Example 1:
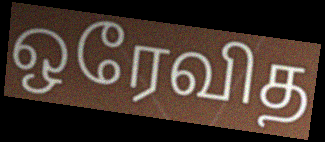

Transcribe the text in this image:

ஒரேவித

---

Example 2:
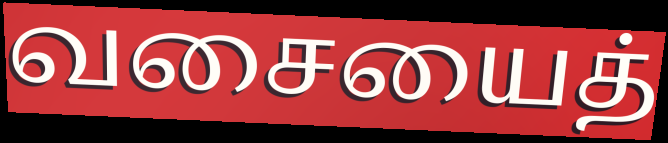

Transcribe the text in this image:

வசையைத்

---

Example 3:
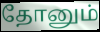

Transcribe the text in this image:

தோனும்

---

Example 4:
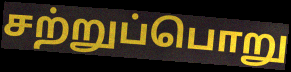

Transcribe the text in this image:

சற்றுப்பொறு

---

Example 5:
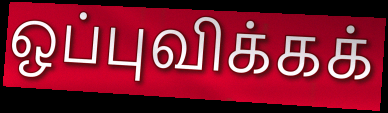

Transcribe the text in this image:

ஒப்புவிக்கக்